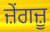
ਜ਼ੇਂਗਜ਼ੂ